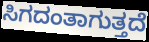
ಸಿಗದಂತಾಗುತ್ತದೆ